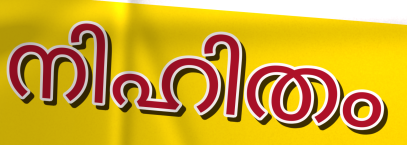
നിഹിതം